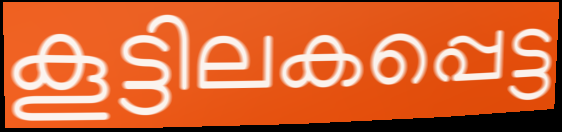
കൂട്ടിലകപ്പെട്ട